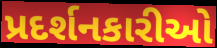
પ્રદર્શનકારીઓ